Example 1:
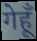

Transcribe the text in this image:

गेहूँ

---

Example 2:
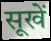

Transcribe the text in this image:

सूखें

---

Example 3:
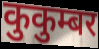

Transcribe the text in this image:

कुकुम्बर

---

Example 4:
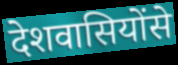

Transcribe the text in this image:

देशवासियोंसे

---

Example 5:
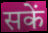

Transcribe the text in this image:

सकें